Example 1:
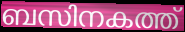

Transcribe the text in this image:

ബസിനകത്ത്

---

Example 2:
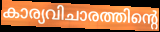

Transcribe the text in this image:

കാര്യവിചാരത്തിന്റെ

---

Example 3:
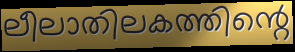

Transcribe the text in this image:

ലീലാതിലകത്തിന്റെ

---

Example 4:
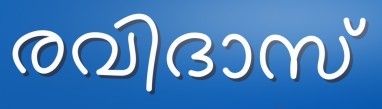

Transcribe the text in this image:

രവിദാസ്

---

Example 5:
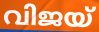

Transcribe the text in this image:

വിജയ്